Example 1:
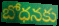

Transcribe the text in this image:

బోధనకు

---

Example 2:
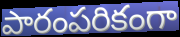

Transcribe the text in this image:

పారంపరికంగా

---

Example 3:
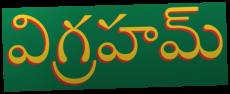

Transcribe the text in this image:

విగ్రహమ్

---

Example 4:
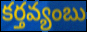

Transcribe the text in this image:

కర్తవ్యంబు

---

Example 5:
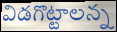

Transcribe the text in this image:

విడగొట్టాలన్న